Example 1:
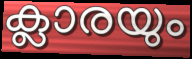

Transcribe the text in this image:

ക്ലാരയും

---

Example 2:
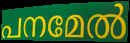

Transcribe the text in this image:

പനമേൽ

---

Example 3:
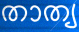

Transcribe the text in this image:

താത്യ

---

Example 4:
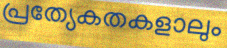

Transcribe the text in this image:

പ്രത്യേകതകളാലും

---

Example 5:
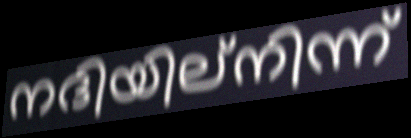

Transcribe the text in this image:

നദിയില്നിന്ന്